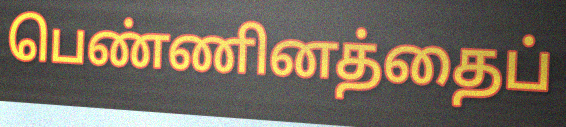
பெண்ணினத்தைப்